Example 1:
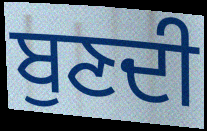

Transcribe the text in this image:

ਬੁਣਦੀ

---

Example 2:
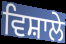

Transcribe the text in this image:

ਵਿਸ਼ਾਲੇ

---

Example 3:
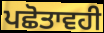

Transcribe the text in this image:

ਪਛੋਤਾਵਹੀ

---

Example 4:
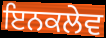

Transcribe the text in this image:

ਇਨਕਲੇਵ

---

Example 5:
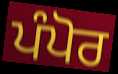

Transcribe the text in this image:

ਪੰਪੋਰ